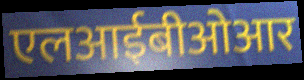
एलआईबीओआर